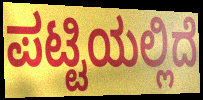
ಪಟ್ಟಿಯಲ್ಲಿದೆ